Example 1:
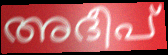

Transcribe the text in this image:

അദീപ്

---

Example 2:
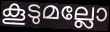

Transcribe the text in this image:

കൂടുമല്ലോ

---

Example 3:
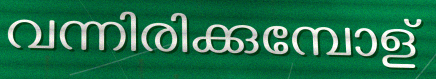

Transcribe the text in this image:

വന്നിരിക്കുമ്പോള്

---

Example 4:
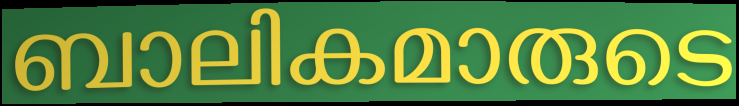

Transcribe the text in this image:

ബാലികമാരുടെ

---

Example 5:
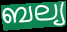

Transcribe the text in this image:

ബല്യ